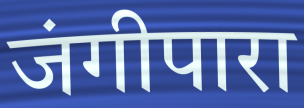
जंगीपारा